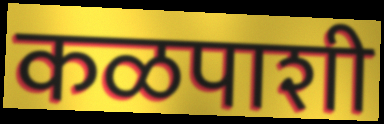
कळपाशी